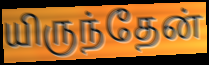
யிருந்தேன்